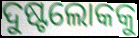
ଦୁଷ୍ଟଲୋକକୁ